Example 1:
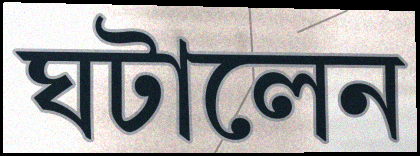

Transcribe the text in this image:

ঘটালেন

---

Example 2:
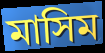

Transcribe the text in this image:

মাসিম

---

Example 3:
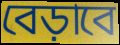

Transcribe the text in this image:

বেড়াবে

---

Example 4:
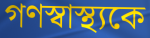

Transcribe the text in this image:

গণস্বাস্থ্যকে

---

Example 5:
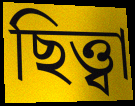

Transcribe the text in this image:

ছিত্ত্বা